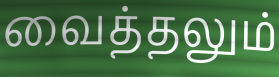
வைத்தலும்